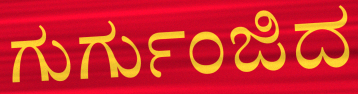
ಗುರ್ಗುಂಜಿದ